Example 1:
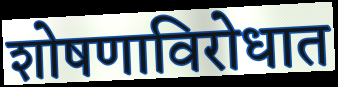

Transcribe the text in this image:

शोषणाविरोधात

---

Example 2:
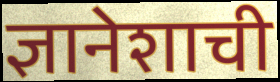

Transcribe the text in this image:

ज्ञानेशाची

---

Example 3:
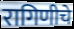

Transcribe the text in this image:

रागिणीचे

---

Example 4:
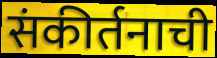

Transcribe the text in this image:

संकीर्तनाची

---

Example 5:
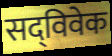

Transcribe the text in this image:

सद्‌विवेक